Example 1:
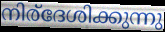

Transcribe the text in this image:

നിര്ദേശിക്കുന്നു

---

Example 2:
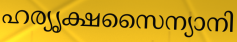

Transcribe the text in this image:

ഹര്യൃക്ഷസൈന്യാനി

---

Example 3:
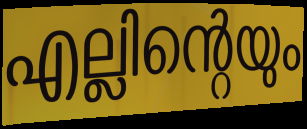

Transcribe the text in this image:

എല്ലിന്റെയും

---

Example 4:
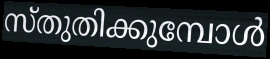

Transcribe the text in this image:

സ്തുതിക്കുമ്പോൾ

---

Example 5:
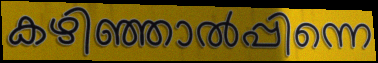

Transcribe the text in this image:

കഴിഞ്ഞാൽപ്പിന്നെ